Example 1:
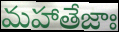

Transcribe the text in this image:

మహాతేజాః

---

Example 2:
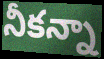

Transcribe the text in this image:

నీకన్నా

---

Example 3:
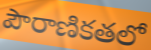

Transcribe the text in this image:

పౌరాణికతలో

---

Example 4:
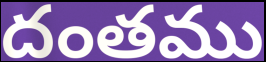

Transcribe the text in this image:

దంతము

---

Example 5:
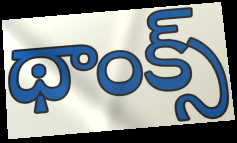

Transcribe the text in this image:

థాంక్స్